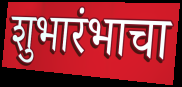
शुभारंभाचा